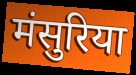
मंसुरिया